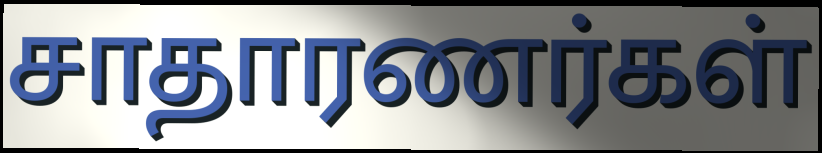
சாதாரணர்கள்